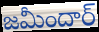
జమీందార్